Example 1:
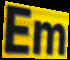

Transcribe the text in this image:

Em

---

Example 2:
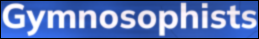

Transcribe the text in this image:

Gymnosophists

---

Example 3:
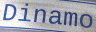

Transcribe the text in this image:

Dinamo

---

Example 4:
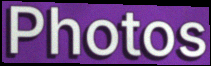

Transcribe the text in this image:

Photos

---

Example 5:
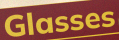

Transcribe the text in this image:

Glasses